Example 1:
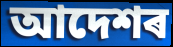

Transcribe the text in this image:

আদেশৰ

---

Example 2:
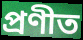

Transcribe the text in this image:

প্ৰণীত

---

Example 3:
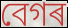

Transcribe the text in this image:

বেগৰ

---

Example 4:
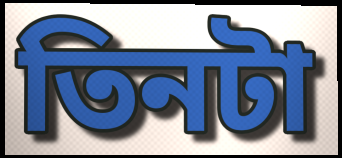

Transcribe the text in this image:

তিনটা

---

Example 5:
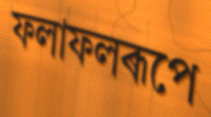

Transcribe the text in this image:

ফলাফলৰূপে